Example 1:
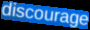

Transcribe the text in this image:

discourage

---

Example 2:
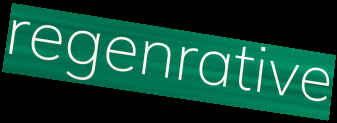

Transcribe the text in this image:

regenrative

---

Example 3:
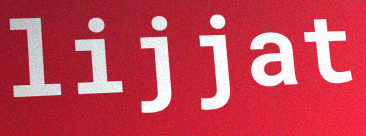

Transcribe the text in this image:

lijjat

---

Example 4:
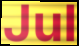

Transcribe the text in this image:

Jul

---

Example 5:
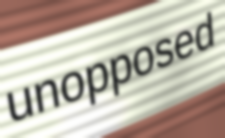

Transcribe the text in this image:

unopposed